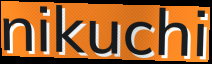
nikuchi